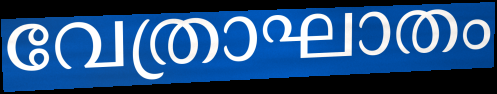
വേത്രാഘാതം